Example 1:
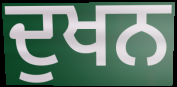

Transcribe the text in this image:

ਦੁਖਨ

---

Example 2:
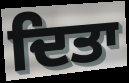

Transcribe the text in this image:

ਦਿਤਾ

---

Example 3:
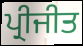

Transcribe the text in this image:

ਪ੍ਰੀਜੀਤ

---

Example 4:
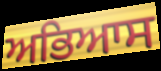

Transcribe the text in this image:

ਅਭਿਆਸ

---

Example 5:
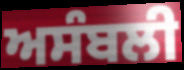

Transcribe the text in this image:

ਅਸੰਬਲੀ